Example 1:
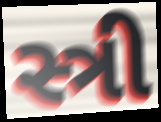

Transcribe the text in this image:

સ્ત્રી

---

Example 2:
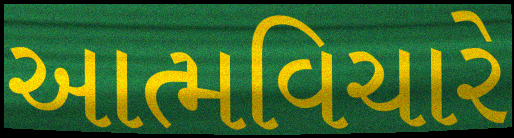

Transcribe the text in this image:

આત્મવિચારે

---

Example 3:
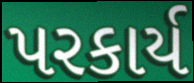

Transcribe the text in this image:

પરકાર્ય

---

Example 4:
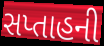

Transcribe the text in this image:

સપ્તાહની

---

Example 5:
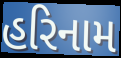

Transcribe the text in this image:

હરિનામ